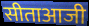
सीताआजी